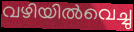
വഴിയിൽവെച്ചു